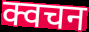
क्वचन